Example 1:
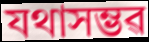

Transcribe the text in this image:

যথাসম্ভৱ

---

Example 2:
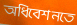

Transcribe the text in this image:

অধিবেশনতে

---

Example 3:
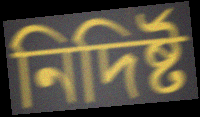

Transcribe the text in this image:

নিদিৰ্ষ্ট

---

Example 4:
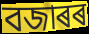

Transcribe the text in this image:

বজাৰৰ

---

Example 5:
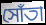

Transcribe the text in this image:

সোঁতা